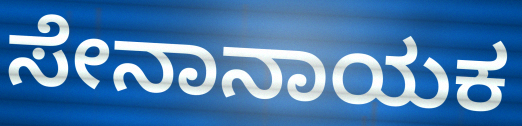
ಸೇನಾನಾಯಕ